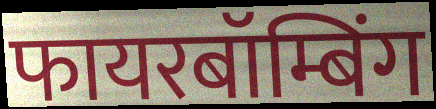
फायरबॉम्बिंग